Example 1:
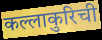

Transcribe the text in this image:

कल्लाकुरिची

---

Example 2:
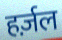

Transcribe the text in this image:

हर्ज़ल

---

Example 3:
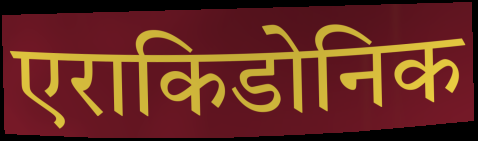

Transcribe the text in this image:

एराकिडोनिक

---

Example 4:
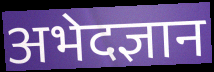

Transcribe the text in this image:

अभेदज्ञान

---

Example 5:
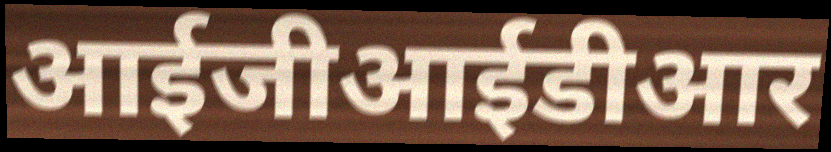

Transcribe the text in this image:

आईजीआईडीआर